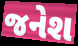
જનેશ